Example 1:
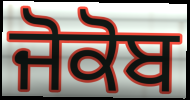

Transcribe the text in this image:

ਜੋਕੋਬ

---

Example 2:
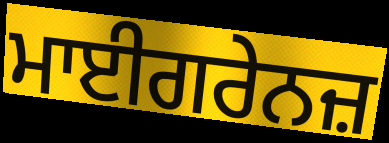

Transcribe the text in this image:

ਮਾਈਗਰੇਨਜ਼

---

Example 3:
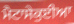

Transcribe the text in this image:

ਮੈਟਾਸੇਕੁਈਆ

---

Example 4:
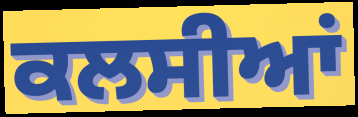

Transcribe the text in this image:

ਕਲਸੀਆਂ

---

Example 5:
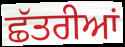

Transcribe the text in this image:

ਛੱਤਰੀਆਂ